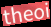
theoi